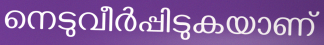
നെടുവീർപ്പിടുകയാണ്